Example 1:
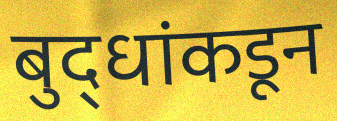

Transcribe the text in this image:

बुद्धांकडून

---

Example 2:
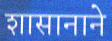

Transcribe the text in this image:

शासानाने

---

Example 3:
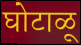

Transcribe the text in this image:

घोटाळू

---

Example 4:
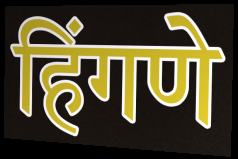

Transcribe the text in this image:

हिंगणे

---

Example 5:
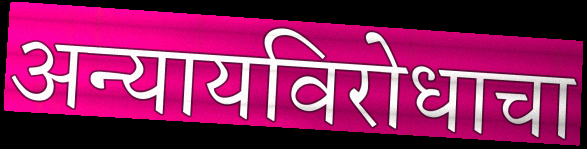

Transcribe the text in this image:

अन्यायविरोधाचा